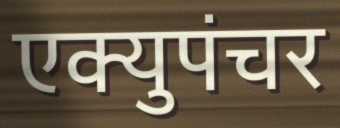
एक्युपंचर